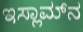
ಇಸ್ಲಾಮ್‌ನ